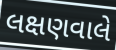
લક્ષણવાલે